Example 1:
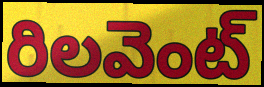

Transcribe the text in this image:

రిలవెంట్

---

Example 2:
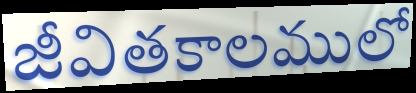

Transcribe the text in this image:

జీవితకాలములో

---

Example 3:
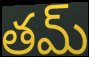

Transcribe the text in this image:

తమ్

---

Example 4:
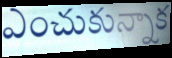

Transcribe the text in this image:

ఎంచుకున్నాక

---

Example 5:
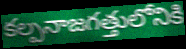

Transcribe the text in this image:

కల్పనాజగత్తులోనికి